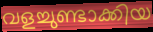
വളച്ചുണ്ടാക്കിയ